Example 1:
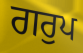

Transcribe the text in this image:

ਗਰੁਪ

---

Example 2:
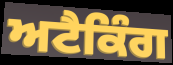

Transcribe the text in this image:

ਅਟੈਕਿੰਗ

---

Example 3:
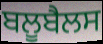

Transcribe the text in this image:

ਬਲੂਬੈਲਸ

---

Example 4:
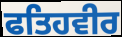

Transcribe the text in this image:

ਫਤਿਹਵੀਰ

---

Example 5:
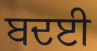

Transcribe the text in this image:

ਬਦਈ